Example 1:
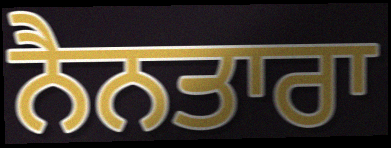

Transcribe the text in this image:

ਨੈਨਤਾਰਾ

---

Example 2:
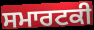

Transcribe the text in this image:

ਸਮਾਰਟਕੀ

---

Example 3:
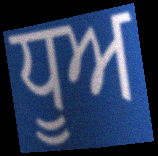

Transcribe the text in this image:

ਧੂਅ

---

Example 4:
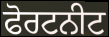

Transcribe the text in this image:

ਫੋਰਟਨੀਟ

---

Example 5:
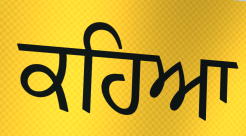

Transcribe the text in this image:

ਕਹਿਆ